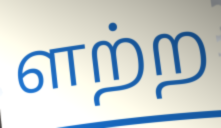
ளற்ற